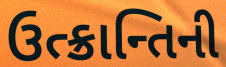
ઉત્ક્રાન્તિની